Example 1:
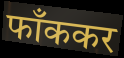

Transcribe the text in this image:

फाँककर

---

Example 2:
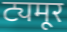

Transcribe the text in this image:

ट्यमूर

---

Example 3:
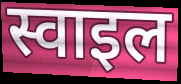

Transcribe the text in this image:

स्वाइल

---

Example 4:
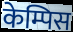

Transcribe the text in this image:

केम्पिस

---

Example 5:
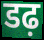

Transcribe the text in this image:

डढ़